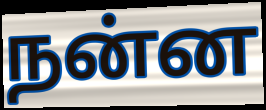
நன்ன